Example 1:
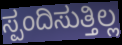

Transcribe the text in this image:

ಸ್ಪಂದಿಸುತ್ತಿಲ್ಲ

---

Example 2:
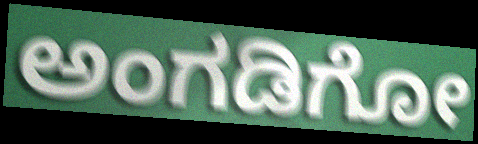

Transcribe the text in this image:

ಅಂಗಡಿಗೋ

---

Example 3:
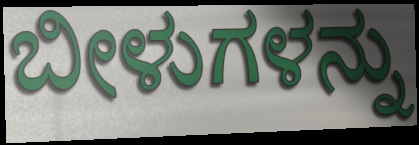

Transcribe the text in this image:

ಬೀಳುಗಳನ್ನು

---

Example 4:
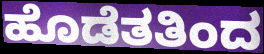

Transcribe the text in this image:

ಹೊಡೆತತಿಂದ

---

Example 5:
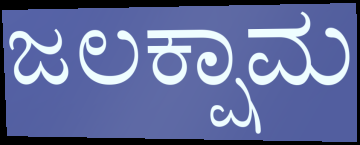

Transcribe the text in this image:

ಜಲಕ್ಷಾಮ